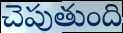
చెపుతుంది